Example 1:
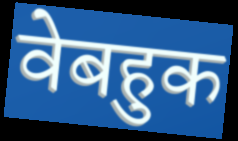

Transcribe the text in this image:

वेबहुक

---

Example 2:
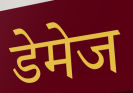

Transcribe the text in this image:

डेमेज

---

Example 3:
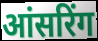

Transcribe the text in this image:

आंसरिंग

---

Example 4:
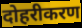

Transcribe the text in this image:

दोहरीकरण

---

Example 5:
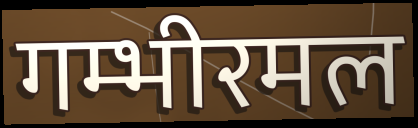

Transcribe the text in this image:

गम्भीरमल